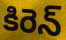
కిరెన్